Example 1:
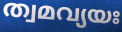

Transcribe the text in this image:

ത്വമവ്യയഃ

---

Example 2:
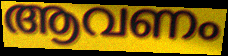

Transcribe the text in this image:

ആവണം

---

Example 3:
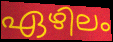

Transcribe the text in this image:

ഏഴിലം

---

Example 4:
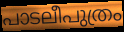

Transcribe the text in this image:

പാടലീപുത്രം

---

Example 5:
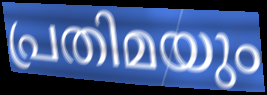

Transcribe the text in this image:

പ്രതിമയും